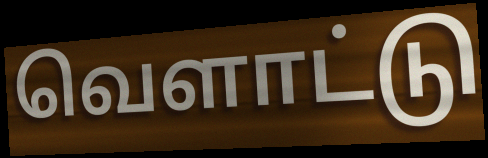
வெளாட்டு